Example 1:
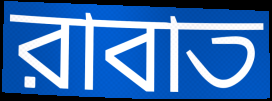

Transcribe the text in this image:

রাবাত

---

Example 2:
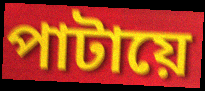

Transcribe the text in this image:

পাটায়ে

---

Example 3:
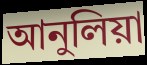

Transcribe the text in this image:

আনুলিয়া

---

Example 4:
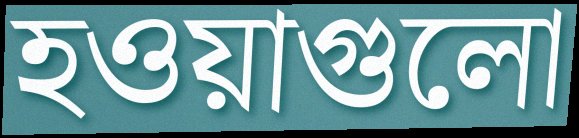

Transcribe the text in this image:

হওয়াগুলো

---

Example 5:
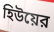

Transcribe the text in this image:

হিউয়ের